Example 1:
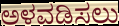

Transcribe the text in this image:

ಅಳವಡಿಸಲು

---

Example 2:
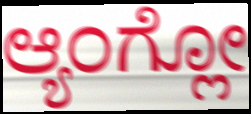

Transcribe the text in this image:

ಆ್ಯಂಗ್ಲೋ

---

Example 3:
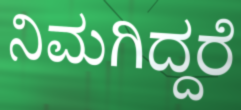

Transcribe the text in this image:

ನಿಮಗಿದ್ದರೆ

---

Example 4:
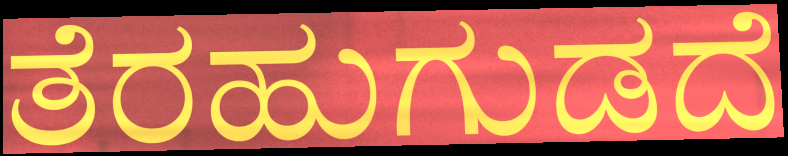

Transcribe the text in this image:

ತೆರಹುಗುಡದೆ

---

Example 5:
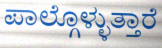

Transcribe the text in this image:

ಪಾಲ್ಗೊಳ್ಳುತ್ತಾರೆ